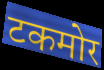
टकमोर